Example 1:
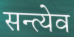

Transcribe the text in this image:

सन्त्येव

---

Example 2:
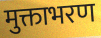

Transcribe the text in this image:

मुक्ताभरण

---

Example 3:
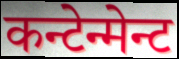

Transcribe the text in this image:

कन्टेन्मेन्ट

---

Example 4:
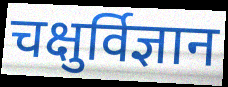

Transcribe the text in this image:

चक्षुर्विज्ञान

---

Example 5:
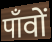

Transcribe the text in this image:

पाँवों